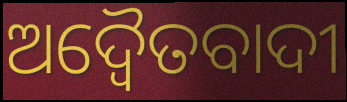
ଅଦ୍ୱୈତବାଦୀ